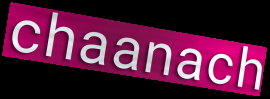
chaanach